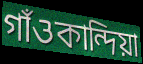
গাঁওকান্দিয়া